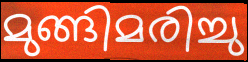
മുങ്ങിമരിച്ചു